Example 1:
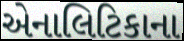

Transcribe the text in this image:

એનાલિટિકાના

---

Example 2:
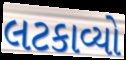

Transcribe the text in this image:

લટકાવ્યો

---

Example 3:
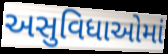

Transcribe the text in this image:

અસુવિધાઓમાં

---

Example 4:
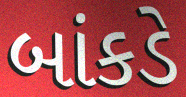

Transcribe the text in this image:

બાંકડે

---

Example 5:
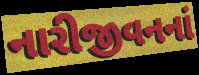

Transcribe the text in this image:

નારીજીવનનાં